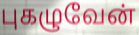
புகழுவேன்